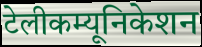
टेलीकम्यूनिकेशन